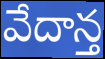
వేదాన్త